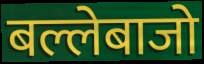
बल्लेबाजो